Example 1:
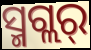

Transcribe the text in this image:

ସ୍ମଗ୍ଲର୍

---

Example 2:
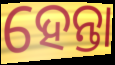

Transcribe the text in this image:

ହେନ୍ତା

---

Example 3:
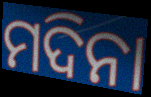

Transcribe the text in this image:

ମଦିନା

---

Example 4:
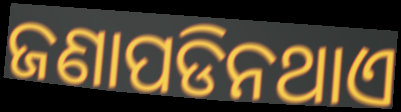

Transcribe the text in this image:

ଜଣାପଡିନଥାଏ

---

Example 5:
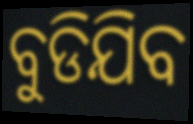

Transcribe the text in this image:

ବୁଡିଯିବ